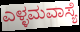
ಎಳ್ಳಮವಾಸ್ಯೆ